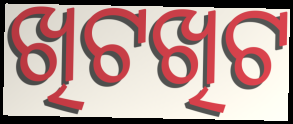
ଖିଟଖିଟ